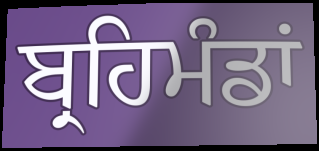
ਬ੍ਰਹਿਮੰਡਾਂ